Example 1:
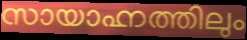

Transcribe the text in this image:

സായാഹ്നത്തിലും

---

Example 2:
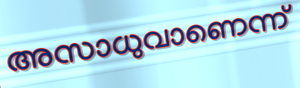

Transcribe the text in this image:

അസാധുവാണെന്ന്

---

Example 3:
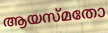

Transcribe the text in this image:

ആയസ്മതോ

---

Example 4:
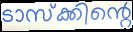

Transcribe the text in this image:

ടാസ്ക്കിന്റെ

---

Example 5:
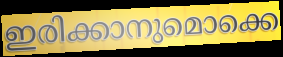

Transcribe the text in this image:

ഇരിക്കാനുമൊക്കെ